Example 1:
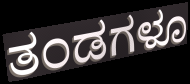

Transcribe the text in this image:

ತಂಡಗಳೂ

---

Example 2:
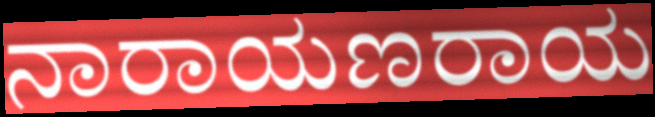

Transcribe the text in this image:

ನಾರಾಯಣರಾಯ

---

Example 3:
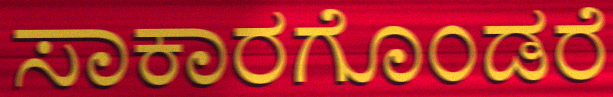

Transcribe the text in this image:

ಸಾಕಾರಗೊಂಡರೆ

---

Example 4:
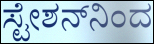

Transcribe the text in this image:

ಸ್ಟೇಶನ್‌ನಿಂದ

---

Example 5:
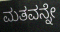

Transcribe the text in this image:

ಮತವನ್ನೇ